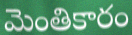
మెంతికారం